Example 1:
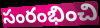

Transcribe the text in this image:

సంరంభించి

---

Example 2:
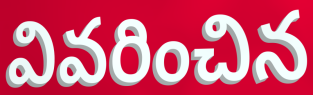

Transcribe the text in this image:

వివరించిన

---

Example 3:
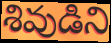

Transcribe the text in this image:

శివుడిని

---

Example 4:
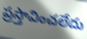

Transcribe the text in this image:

ప్రస్తావించలేదు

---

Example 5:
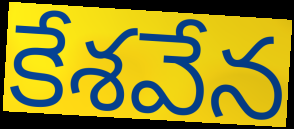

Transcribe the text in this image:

కేశవేన